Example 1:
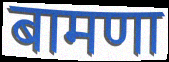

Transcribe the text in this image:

बामणा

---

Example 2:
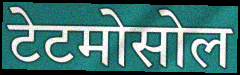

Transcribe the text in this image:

टेटमोसोल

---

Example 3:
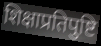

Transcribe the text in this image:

शिक्षाप्रतिपुष्टि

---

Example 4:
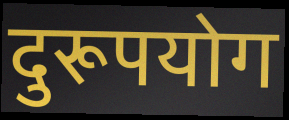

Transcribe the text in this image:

दुरूपयोग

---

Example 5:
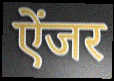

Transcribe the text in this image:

ऐंजर